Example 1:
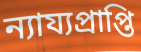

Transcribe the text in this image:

ন্যায্যপ্রাপ্তি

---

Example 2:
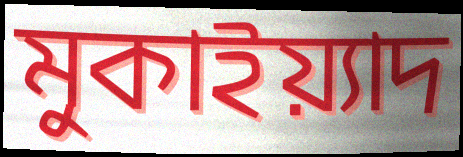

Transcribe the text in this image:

মুকাইয়্যাদ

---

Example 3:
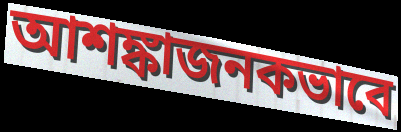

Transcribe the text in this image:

আশঙ্কাজনকভাবে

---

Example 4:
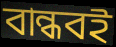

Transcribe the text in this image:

বান্ধবই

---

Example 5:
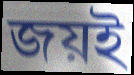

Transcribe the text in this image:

জয়ই